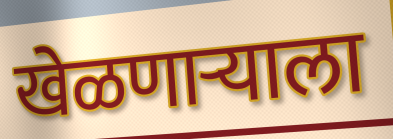
खेळणाऱ्याला